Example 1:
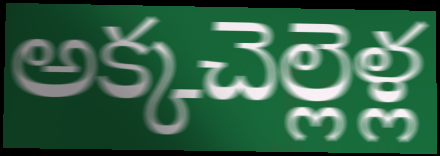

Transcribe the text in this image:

అక్కచెల్లెళ్ల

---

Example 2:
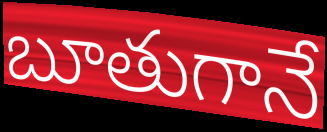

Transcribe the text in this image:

బూతుగానే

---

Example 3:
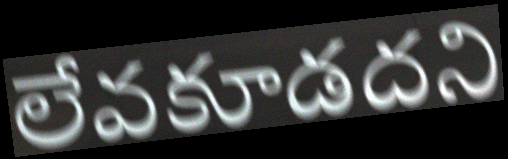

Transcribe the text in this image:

లేవకూడదని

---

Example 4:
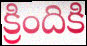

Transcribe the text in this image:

క్రిందికి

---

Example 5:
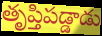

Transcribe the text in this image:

తృప్తిపడ్డాడు